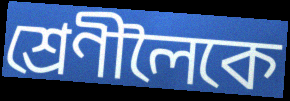
শ্ৰেণীলৈকে